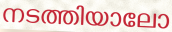
നടത്തിയാലോ